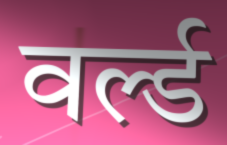
वर्ल्‍ड